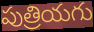
పుత్రియగు